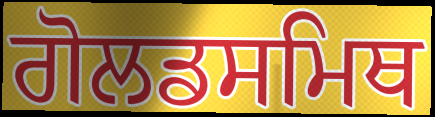
ਗੋਲਡਸਮਿਥ